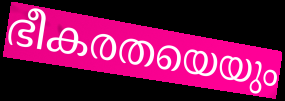
ഭീകരതയെയും